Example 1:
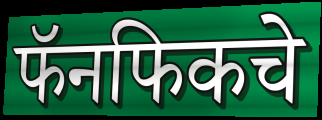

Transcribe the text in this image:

फॅनफिकचे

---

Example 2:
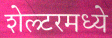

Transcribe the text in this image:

शेल्टरमध्ये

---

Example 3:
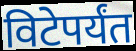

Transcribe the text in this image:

विटेपर्यंत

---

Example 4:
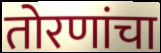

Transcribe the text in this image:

तोरणांचा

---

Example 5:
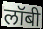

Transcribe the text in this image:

लॉबी